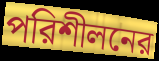
পরিশীলনের